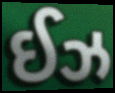
ઈઝ